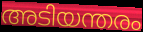
അടിയന്തരം